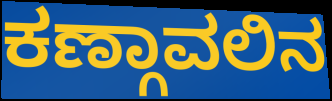
ಕಣ್ಗಾವಲಿನ